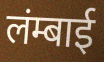
लंम्बाई